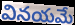
వినయమే